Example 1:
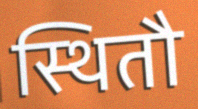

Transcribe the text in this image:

स्थितौ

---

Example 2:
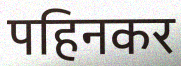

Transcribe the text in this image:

पहिनकर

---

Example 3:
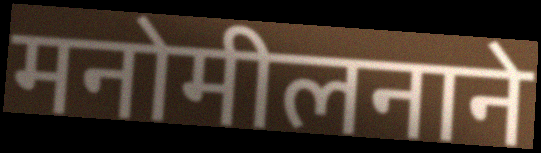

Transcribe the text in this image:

मनोमीलनाने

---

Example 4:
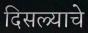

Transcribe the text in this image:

दिसल्याचे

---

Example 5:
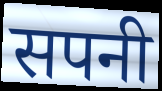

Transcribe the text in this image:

सपनी